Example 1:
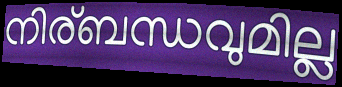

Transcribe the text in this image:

നിര്ബന്ധവുമില്ല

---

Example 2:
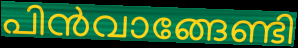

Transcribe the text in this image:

പിൻവാങ്ങേണ്ടി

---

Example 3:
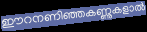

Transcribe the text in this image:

ഈറനണിഞ്ഞകണ്ണുകളാൽ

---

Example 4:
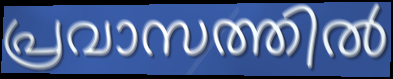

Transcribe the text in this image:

പ്രവാസത്തിൽ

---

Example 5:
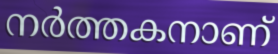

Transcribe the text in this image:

നർത്തകനാണ്